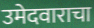
उमेदवाराचा